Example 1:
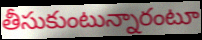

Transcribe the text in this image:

తీసుకుంటున్నారంటూ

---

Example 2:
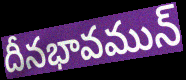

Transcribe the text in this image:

దీనభావమున్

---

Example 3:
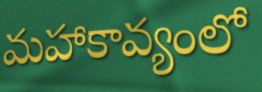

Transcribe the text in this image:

మహాకావ్యంలో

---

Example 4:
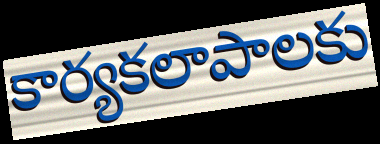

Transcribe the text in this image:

కార్యకలాపాలకు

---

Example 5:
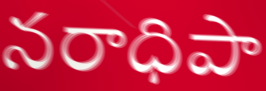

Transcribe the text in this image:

నరాధిపా